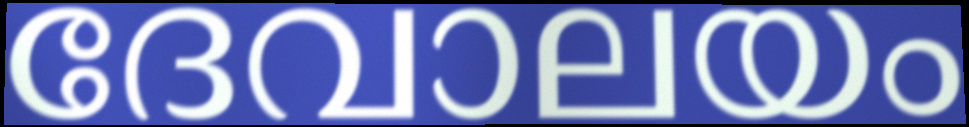
ദേവാലയം